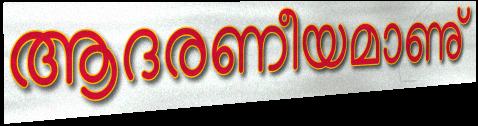
ആദരണീയമാണു്